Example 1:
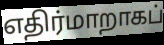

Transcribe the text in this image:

எதிர்மாறாகப்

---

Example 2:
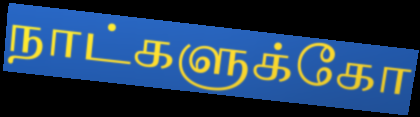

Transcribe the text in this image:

நாட்களுக்கோ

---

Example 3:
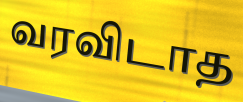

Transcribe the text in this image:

வரவிடாத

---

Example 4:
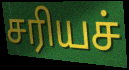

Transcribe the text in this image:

சரியச்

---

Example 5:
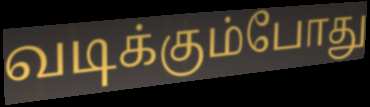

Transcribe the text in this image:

வடிக்கும்போது